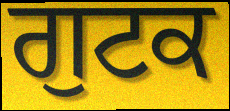
ਗੁਟਕ